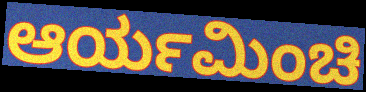
ಆರ್ಯಮಿಂಚಿ